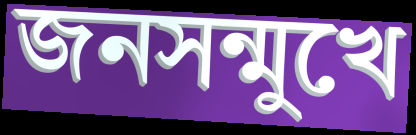
জনসন্মুখে